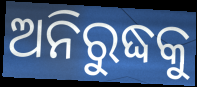
ଅନିରୁଦ୍ଧକୁ